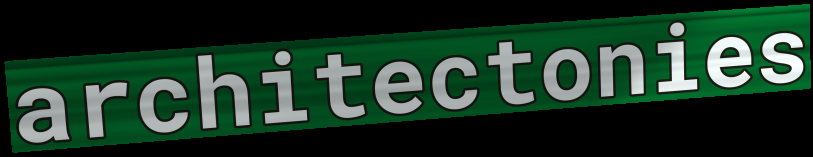
architectonies